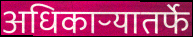
अधिकाऱ्यातर्फे